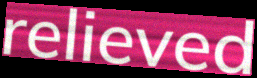
relieved